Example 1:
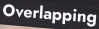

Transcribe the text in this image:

Overlapping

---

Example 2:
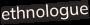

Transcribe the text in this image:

ethnologue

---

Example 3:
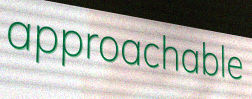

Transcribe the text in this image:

approachable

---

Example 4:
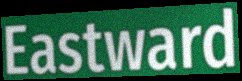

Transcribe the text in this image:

Eastward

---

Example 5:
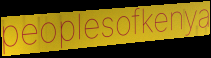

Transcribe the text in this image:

peoplesofkenya